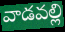
వాడవల్లి